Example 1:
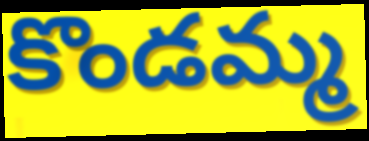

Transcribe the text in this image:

కొండమ్మ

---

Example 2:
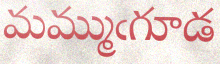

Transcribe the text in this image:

మమ్ముఁగూడ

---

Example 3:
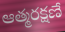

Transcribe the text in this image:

ఆత్మరక్షణే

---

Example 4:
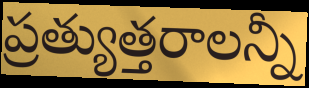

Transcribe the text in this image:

ప్రత్యుత్తరాలన్నీ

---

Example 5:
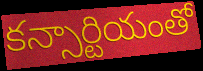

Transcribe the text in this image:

కన్సార్టియంతో